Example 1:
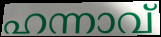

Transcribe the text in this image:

ഹന്നാവ്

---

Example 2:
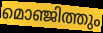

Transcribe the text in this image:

മൊഞ്ജിത്തും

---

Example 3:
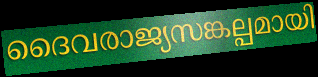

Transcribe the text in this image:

ദൈവരാജ്യസങ്കല്പമായി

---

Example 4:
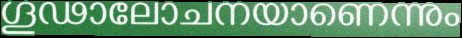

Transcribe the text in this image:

ഗൂഢാലോചനയാണെന്നും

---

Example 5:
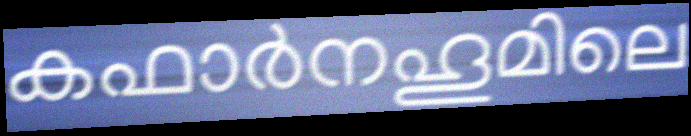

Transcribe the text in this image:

കഫാർനഹൂമിലെ